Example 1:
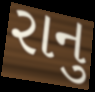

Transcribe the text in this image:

રાનુ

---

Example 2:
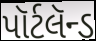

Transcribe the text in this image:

પૉર્ટલૅન્ડ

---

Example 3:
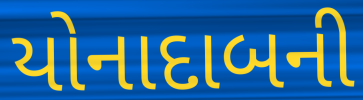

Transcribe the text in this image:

યોનાદાબની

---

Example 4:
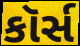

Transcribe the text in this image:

કૉર્સ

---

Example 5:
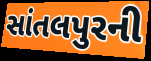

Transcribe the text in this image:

સાંતલપુરની